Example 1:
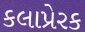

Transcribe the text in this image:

કલાપ્રેરક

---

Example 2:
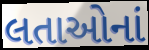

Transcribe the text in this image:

લતાઓનાં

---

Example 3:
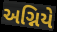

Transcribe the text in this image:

અગ્નિયે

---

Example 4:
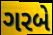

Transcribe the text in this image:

ગરબે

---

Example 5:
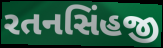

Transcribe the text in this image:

રતનસિંહજી